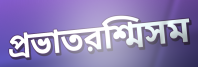
প্রভাতরশ্মিসম